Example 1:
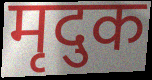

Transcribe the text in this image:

मृदुक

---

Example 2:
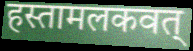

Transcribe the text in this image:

हस्तामलकवत्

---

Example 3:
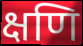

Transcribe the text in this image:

क्षणि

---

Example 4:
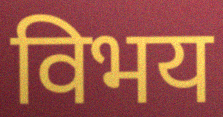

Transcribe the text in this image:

विभय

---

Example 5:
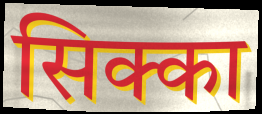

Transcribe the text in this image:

सिक्‍का